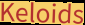
Keloids